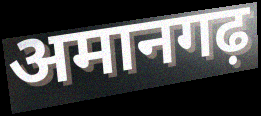
अमानगढ़